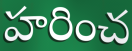
హరించ